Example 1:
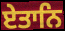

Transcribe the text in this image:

ਏਤਾਨਿ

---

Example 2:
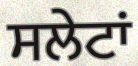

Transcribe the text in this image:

ਸਲੇਟਾਂ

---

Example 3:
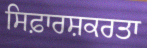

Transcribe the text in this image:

ਸਿਫ਼ਾਰਸ਼ਕਰਤਾ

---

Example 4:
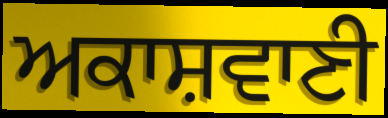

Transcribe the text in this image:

ਅਕਾਸ਼ਵਾਣੀ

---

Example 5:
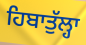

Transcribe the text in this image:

ਹਿਬਾਤੁੱਲ੍ਹਾ